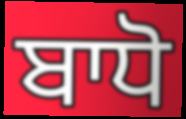
ਬਾਧੋ